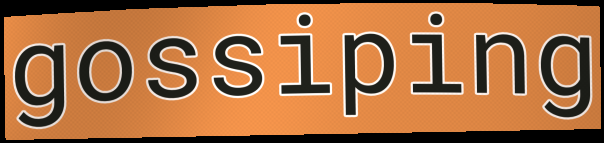
gossiping